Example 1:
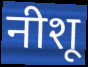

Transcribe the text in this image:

नीशू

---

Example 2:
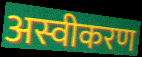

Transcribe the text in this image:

अस्वीकरण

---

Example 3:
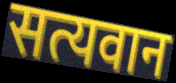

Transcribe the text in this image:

सत्यवान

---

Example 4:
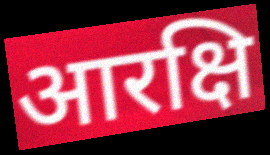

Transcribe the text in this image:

आरक्षि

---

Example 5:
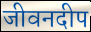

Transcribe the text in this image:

जीवनदीप